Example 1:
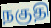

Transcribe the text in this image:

நகுதி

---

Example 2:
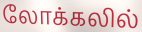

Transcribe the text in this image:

லோக்கலில்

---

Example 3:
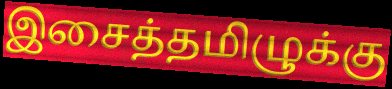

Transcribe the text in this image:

இசைத்தமிழுக்கு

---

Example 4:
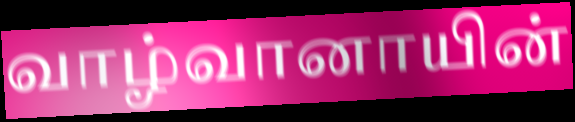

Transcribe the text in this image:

வாழ்வானாயின்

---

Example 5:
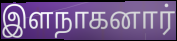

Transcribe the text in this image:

இளநாகனார்